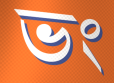
ভং